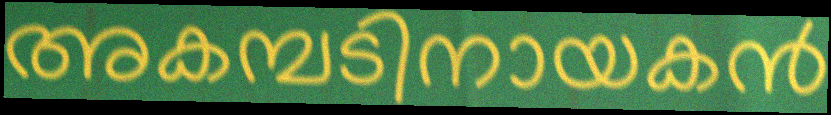
അകമ്പടിനായകൻ